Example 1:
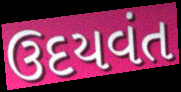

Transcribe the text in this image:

ઉદયવંત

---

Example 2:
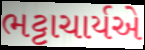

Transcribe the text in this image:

ભટ્ટાચાર્યએ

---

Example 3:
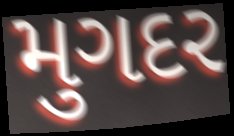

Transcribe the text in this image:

મુગદર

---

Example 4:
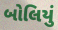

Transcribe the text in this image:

બોલિયું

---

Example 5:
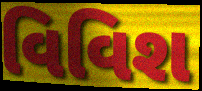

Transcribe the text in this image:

વિવિશ